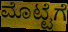
ಮೊಟ್ಟೆಗೆ